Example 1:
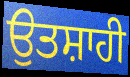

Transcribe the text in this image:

ਉਤਸ਼ਾਹੀ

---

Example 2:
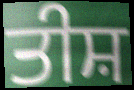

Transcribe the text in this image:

ਤੀਸ਼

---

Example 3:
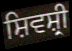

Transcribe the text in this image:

ਸ਼ਿਵਸ਼੍ਰੀ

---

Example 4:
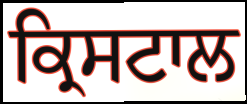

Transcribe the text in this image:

ਕ੍ਰਿਸਟਾਲ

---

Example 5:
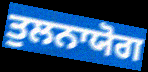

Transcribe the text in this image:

ਤੁਲਨਾਯੋਗ